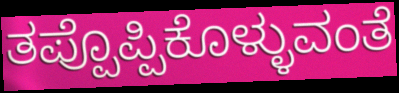
ತಪ್ಪೊಪ್ಪಿಕೊಳ್ಳುವಂತೆ